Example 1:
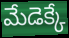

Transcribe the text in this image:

మేడెక్కే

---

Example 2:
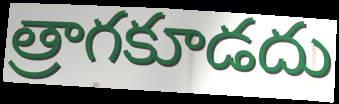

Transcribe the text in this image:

త్రాగకూడదు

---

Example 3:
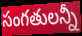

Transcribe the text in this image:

సంగతులన్నీ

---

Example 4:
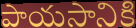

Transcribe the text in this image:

పాయసానికి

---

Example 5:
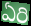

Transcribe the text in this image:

ఏరి